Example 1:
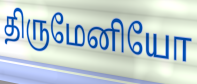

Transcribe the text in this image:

திருமேனியோ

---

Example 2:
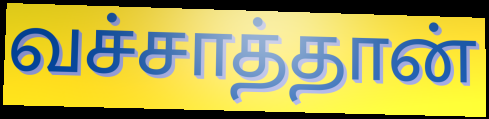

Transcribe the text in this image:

வச்சாத்தான்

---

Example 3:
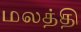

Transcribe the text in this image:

மலத்தி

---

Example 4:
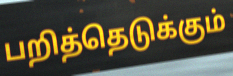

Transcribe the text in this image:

பறித்தெடுக்கும்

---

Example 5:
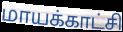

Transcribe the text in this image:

மாயக்காட்சி